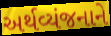
અર્થવ્યંજનાને